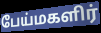
பேய்மகளிர்